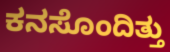
ಕನಸೊಂದಿತ್ತು